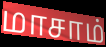
மாசாம்